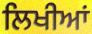
ਲਿਖੀਆਂ